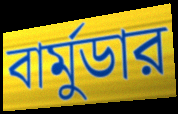
বার্মুডার